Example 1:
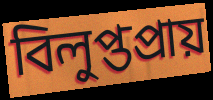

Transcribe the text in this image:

বিলুপ্তপ্রায়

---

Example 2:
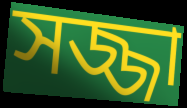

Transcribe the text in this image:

সজ্জা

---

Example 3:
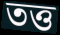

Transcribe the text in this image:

তত্ত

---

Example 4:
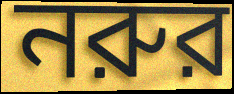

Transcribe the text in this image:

নরুর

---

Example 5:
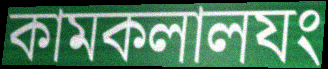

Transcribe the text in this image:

কামকলালযং